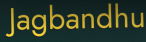
Jagbandhu